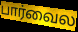
பார்வைல